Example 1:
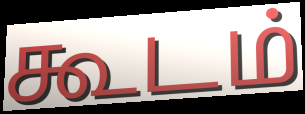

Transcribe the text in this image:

கூடம்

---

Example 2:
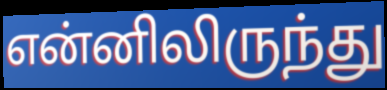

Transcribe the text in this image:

என்னிலிருந்து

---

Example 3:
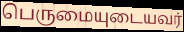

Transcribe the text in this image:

பெருமையுடையவர்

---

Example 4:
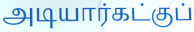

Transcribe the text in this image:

அடியார்கட்குப்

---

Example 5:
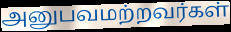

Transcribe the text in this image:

அனுபவமற்றவர்கள்